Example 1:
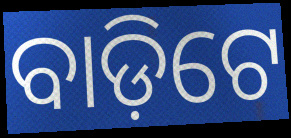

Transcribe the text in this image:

ବାଡ଼ିଟେ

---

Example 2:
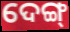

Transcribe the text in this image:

ଦେଙ୍ଗ୍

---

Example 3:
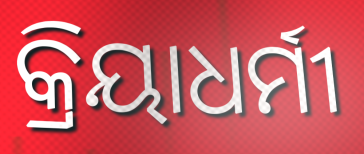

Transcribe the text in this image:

କ୍ରିୟାଧର୍ମୀ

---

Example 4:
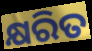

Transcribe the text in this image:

କ୍ଷରିତ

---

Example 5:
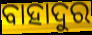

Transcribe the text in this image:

ବାହାଦୁର